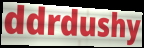
ddrdushy